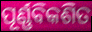
ପୂର୍ଣ୍ଣବିକଶିତ